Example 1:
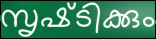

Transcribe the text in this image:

സൃഷ്‌ടിക്കും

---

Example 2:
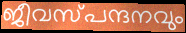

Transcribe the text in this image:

ജീവസ്പന്ദനവും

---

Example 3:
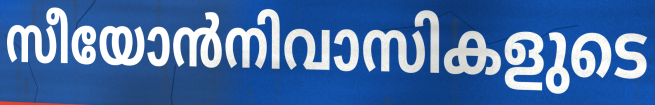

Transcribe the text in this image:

സീയോൻനിവാസികളുടെ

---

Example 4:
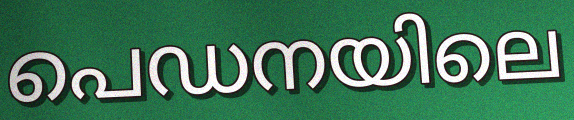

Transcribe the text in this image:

പെഡനയിലെ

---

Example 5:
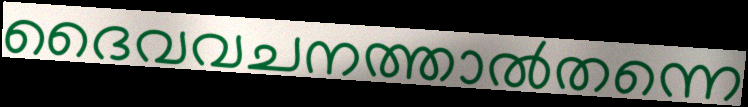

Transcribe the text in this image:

ദൈവവചനത്താൽതന്നെ